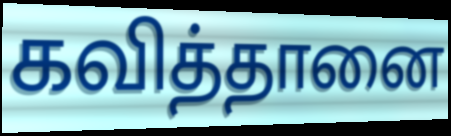
கவித்தானை